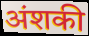
अंशकी